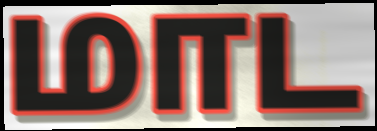
மாட